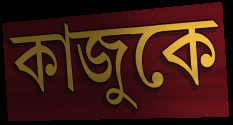
কাজুকে